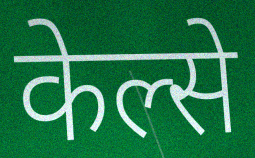
केल्से